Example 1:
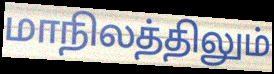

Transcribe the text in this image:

மாநிலத்திலும்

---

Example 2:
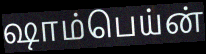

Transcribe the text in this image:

ஷாம்பெய்ன்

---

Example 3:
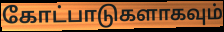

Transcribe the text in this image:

கோட்பாடுகளாகவும்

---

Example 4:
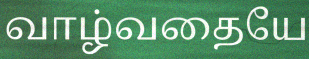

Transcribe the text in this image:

வாழ்வதையே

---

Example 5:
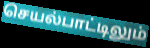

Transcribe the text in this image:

செயல்பாட்டிலும்